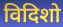
विदिशो